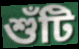
শুঁটি